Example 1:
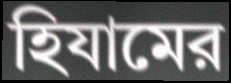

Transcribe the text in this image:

হিযামের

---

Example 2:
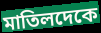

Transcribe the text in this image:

মাতিলদেকে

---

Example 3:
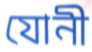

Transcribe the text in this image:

যোনী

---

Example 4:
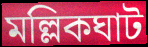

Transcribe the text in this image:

মল্লিকঘাট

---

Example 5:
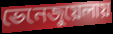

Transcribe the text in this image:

ভেনেজুয়েলায়